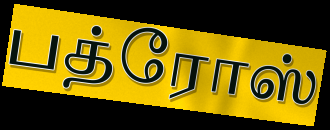
பத்ரோஸ்